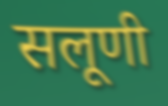
सलूणी